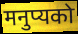
मनुप्यको